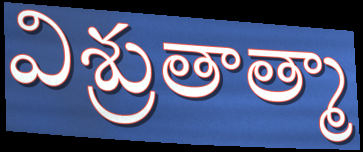
విశ్రుతాత్మా